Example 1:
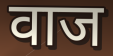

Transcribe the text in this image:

वाज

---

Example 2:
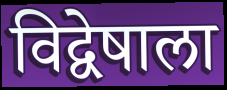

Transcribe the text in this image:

विद्वेषाला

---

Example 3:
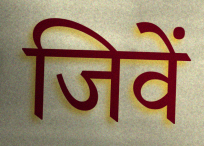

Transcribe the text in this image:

जिवें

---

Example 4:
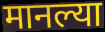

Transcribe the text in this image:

मानल्या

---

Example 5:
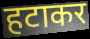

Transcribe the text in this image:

हटाकर